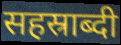
सहस्राब्दी